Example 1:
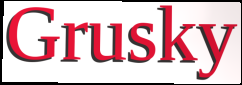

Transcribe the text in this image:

Grusky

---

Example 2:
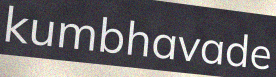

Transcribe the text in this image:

kumbhavade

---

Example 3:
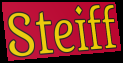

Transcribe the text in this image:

Steiff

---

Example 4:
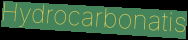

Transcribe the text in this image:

Hydrocarbonatis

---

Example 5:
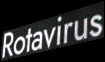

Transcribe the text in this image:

Rotavirus